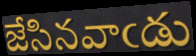
జేసినవాఁడు